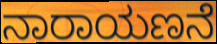
ನಾರಾಯಣನೆ